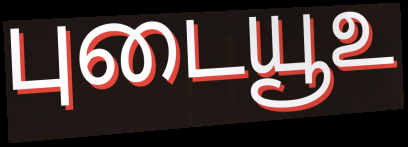
புடையூஉ